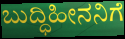
ಬುದ್ಧಿಹೀನನಿಗೆ